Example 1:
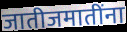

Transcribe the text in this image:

जातीजमातींना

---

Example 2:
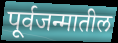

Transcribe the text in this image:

पूर्वजन्मातील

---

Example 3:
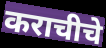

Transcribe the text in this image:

कराचीचे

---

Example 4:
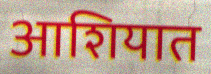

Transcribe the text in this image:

आशियात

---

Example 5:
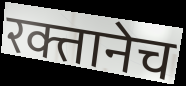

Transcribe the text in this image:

रक्तानेच